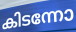
കിടന്നോ